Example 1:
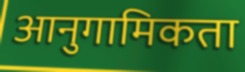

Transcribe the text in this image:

आनुगामिकता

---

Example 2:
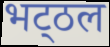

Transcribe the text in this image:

भट्‌ठल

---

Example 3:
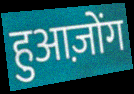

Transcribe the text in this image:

हुआज़ोंग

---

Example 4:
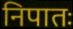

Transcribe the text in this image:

निपातः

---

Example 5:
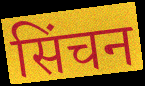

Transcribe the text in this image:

सिंचन